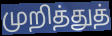
முறித்துத்